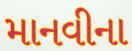
માનવીના